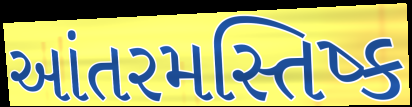
આંતરમસ્તિષ્ક